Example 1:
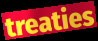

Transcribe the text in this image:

treaties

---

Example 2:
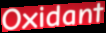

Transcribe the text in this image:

Oxidant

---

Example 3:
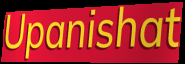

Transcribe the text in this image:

Upanishat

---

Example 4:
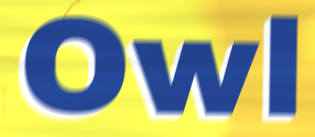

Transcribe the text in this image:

Owl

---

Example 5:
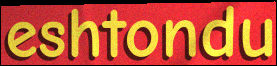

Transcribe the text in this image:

eshtondu